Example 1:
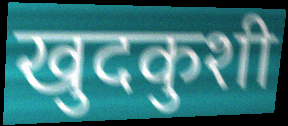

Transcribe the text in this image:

खुदकुशी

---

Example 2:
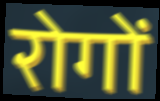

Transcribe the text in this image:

रोगों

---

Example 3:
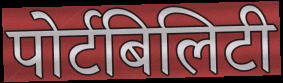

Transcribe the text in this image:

पोर्टबिलिटी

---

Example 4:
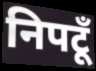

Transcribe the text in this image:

निपटूँ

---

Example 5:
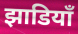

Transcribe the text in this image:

झाडियाँ